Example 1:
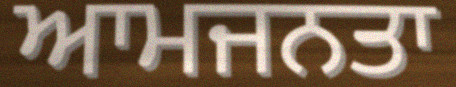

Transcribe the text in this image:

ਆਮਜਨਤਾ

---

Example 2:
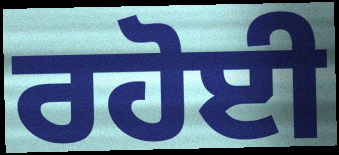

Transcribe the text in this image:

ਰਹੋਈ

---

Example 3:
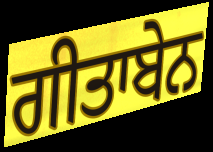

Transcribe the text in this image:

ਗੀਤਾਬੇਨ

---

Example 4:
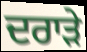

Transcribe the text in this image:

ਦਰਾੜੇ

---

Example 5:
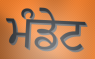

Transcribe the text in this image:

ਮੰਡੇਟ